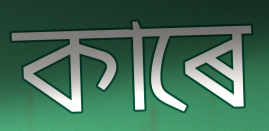
কাৰে